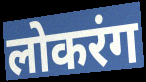
लोकरंग